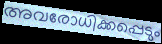
അവരോധിക്കപ്പെടും